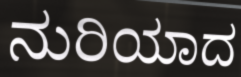
ನುರಿಯಾದ